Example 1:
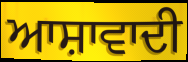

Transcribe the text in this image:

ਆਸ਼ਾਵਾਦੀ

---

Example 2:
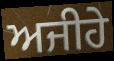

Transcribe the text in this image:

ਅਜੀਹੇ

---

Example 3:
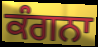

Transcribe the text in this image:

ਕੰਗਨਾ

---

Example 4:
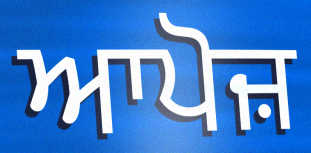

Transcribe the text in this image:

ਆਪੋਜ਼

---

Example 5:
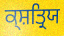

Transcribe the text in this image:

ਕ੍ਸ਼ਤ੍ਰਿਯ